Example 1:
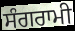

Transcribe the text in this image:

ਸੰਗਰਾਮੀ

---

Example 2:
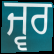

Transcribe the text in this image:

ਜ੍ਵਰ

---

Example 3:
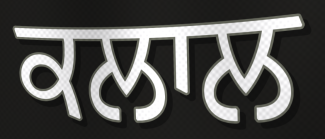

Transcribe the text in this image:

ਕਲਾਲ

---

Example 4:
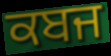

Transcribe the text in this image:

ਕਬਜ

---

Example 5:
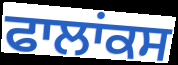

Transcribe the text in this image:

ਫਾਲਾਂਕਸ